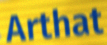
Arthat